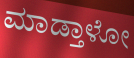
ಮಾಡ್ತಾಳೋ